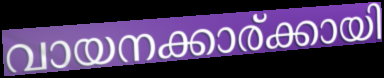
വായനക്കാര്ക്കായി